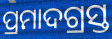
ପ୍ରମାଦଗ୍ରସ୍ତ